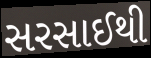
સરસાઈથી